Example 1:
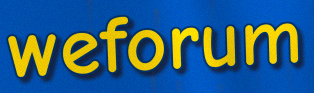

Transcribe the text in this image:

weforum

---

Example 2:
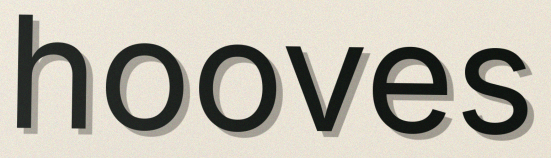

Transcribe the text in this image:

hooves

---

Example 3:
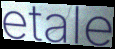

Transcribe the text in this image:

etale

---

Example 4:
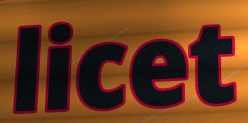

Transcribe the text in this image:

licet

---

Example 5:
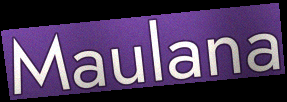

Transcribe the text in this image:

Maulana